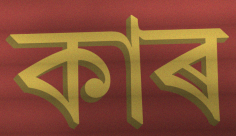
কাৰ